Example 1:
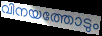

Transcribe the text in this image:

വിനയത്തോടും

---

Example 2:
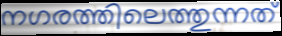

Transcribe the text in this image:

നഗരത്തിലെത്തുന്നത്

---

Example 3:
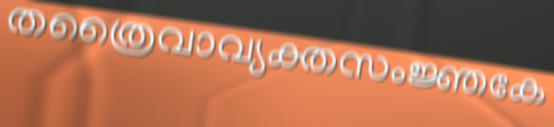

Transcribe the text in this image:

തത്രൈവാവ്യക്തസംജ്ഞകേ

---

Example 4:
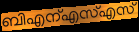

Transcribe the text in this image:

ബിഎന്എസ്എസ്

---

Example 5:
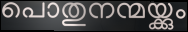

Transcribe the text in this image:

പൊതുനന്മയ്ക്കും